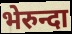
भेरुन्दा